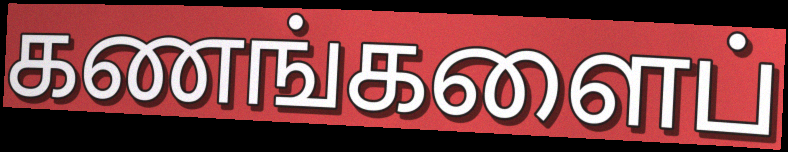
கணங்களைப்